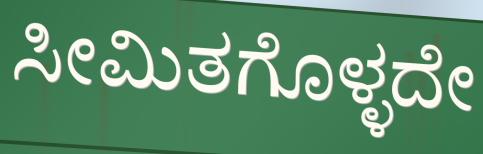
ಸೀಮಿತಗೊಳ್ಳದೇ